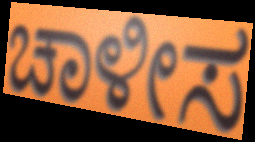
ಚಾಳೀಸ